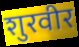
शुरवीर